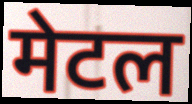
मेटल